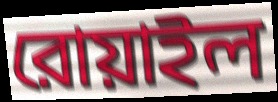
রোয়াইল